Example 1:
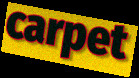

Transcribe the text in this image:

carpet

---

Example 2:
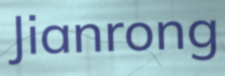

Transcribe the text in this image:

Jianrong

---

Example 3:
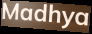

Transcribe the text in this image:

Madhya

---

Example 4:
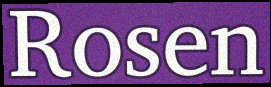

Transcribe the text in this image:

Rosen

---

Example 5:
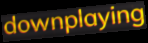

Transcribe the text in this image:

downplaying